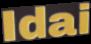
Idai